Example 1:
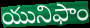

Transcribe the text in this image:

యునిఫాం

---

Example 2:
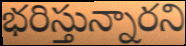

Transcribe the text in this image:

భరిస్తున్నారని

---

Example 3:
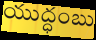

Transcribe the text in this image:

యుద్ధంబు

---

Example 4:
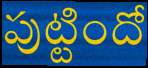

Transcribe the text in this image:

పుట్టిందో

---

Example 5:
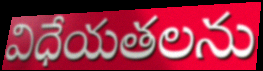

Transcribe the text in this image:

విధేయతలను